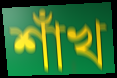
শাঁখ